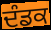
ਦੰਡਕ